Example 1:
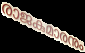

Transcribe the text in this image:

രാജകുമാരനും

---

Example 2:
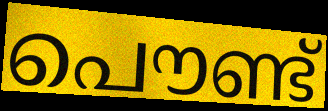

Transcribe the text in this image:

പൌണ്ട്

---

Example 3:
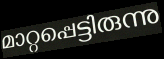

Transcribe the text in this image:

മാറ്റപ്പെട്ടിരുന്നു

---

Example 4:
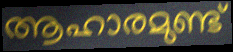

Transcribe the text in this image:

ആഹാരമുണ്ട്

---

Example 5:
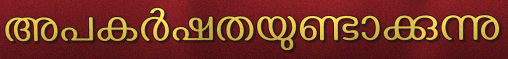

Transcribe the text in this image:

അപകർഷതയുണ്ടാക്കുന്നു